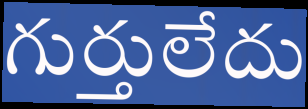
గుర్తులేదు